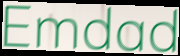
Emdad